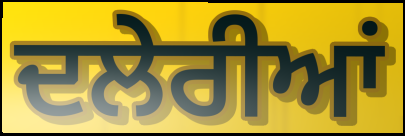
ਦਲੇਰੀਆਂ